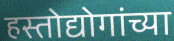
हस्तोद्योगांच्या